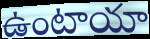
ఉంటాయా